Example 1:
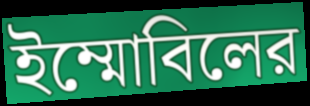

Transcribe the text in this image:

ইম্মোবিলের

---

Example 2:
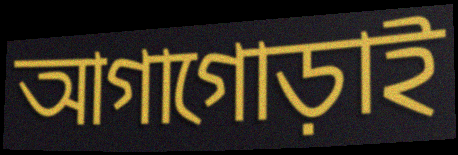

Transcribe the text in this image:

আগাগোড়াই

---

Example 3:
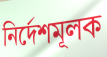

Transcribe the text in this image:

নির্দেশমূলক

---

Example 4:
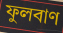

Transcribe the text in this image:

ফুলবাণ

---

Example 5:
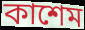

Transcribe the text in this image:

কাশেম